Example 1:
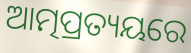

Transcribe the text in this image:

ଆତ୍ମପ୍ରତ୍ୟୟରେ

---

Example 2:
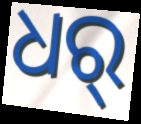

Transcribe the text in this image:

ଧର୍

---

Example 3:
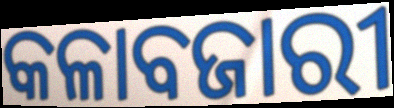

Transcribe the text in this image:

କଳାବଜାରୀ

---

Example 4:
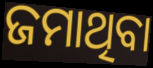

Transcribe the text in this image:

ଜମାଥିବା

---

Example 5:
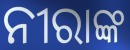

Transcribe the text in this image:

ନୀରାଙ୍କ